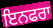
ਇਨਫਰਾ